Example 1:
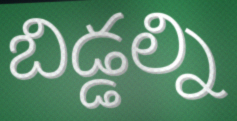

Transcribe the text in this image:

బిడ్డల్ని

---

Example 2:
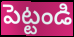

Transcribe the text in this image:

పెట్టండి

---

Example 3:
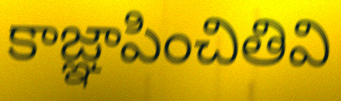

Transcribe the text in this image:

కాజ్ఞాపించితివి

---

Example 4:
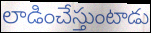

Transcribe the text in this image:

లాడించేస్తుంటాడు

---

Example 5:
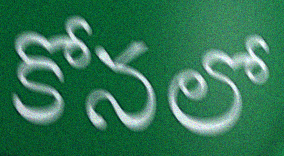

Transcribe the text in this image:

కోనలో